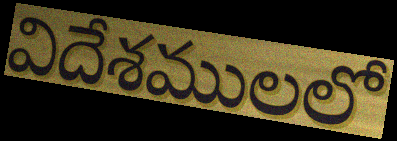
విదేశములలో